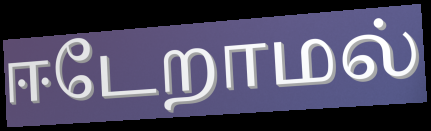
ஈடேறாமல்